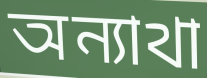
অন্যাথা